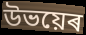
উভয়েৰ